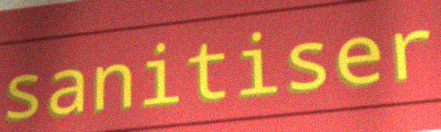
sanitiser